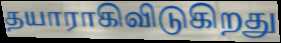
தயாராகிவிடுகிறது